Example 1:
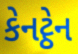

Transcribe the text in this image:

કેનટ્ઠેન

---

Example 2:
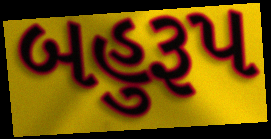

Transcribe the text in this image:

બહુરૂપ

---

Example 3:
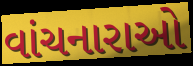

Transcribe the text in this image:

વાંચનારાઓ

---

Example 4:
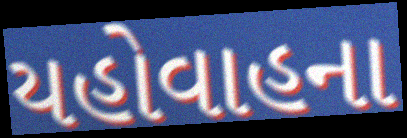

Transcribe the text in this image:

યહોવાહના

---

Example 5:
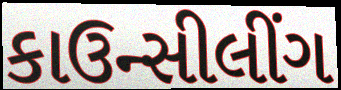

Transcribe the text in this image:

કાઉન્સીલીંગ